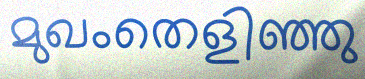
മുഖംതെളിഞ്ഞു